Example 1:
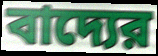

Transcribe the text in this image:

বাদ্যের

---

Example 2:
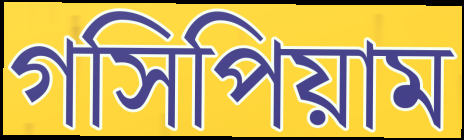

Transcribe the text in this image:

গসিপিয়াম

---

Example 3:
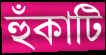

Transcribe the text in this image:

হুঁকাটি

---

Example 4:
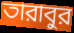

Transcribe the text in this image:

তারাবুর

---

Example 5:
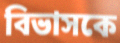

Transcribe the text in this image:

বিভাসকে